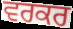
ਵਰਕਰ